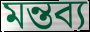
মন্তব্য